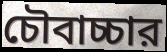
চৌবাচ্চার